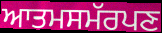
ਆਤਮਸਮੱਰਪਣ